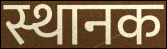
स्थानक